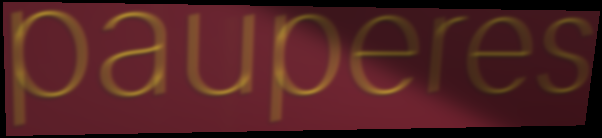
pauperes